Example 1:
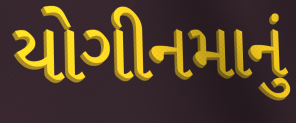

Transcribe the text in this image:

યોગીનમાનું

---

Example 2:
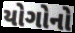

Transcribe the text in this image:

યોગોનો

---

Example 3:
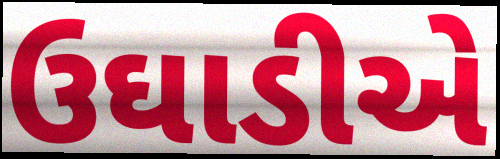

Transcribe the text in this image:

ઉઘાડીએ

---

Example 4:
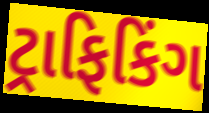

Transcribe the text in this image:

ટ્રાફિકિંગ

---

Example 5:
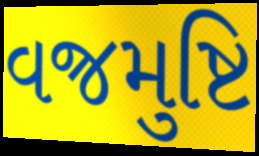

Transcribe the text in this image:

વજ્રમુષ્ટિ